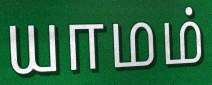
யாமம்